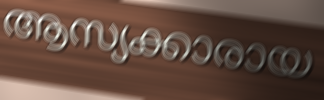
ആസ്യക്കാരായ